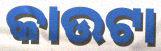
କାଉଟା